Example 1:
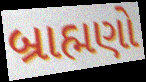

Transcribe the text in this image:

બ્રાહ્મણો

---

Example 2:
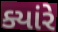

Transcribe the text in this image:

ક્યાંરે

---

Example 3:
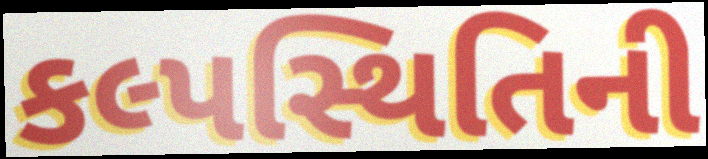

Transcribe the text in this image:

કલ્પસ્થિતિની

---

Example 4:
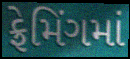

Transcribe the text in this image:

ફ્રેમિંગમાં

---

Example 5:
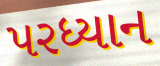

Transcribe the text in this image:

પરધ્યાન